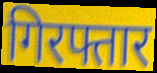
गिरफ्तार